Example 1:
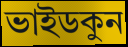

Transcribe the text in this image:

ভাইডকুন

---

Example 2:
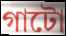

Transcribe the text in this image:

গাটো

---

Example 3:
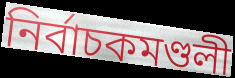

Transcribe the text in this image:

নিৰ্বাচকমণ্ডলী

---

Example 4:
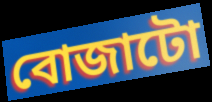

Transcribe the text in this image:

বোজাটো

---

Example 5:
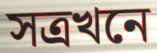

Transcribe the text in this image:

সত্ৰখনে